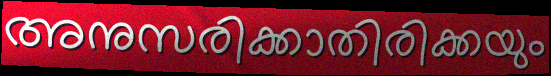
അനുസരിക്കാതിരിക്കയും